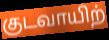
குடவாயிற்